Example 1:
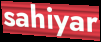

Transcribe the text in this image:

sahiyar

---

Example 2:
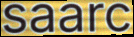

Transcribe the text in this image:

saarc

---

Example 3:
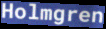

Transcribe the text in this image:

Holmgren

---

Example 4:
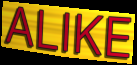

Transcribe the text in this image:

ALIKE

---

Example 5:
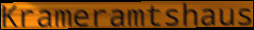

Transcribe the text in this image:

Krameramtshaus